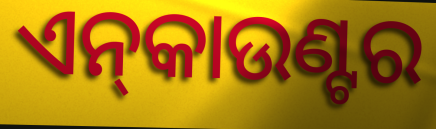
ଏନ୍‌କାଉଣ୍ଟର